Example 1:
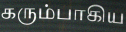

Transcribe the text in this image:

கரும்பாகிய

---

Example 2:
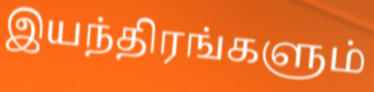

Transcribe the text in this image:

இயந்திரங்களும்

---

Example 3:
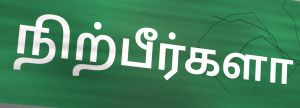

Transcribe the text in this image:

நிற்பீர்களா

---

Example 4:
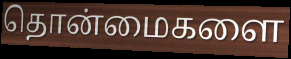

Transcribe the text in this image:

தொன்மைகளை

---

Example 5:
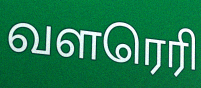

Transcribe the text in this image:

வளரெரி